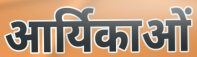
आर्यिकाओं